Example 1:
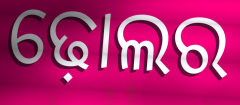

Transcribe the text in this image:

ଢ଼ୋଲର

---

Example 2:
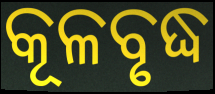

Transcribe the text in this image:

କୂଳବୃଦ୍ଧ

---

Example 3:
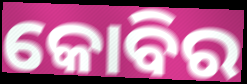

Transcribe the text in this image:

କୋବିର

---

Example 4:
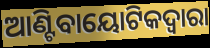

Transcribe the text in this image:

ଆଣ୍ଟିବାୟୋଟିକଦ୍ୱାରା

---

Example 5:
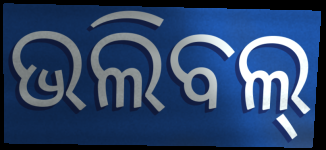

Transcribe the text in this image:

ଭଲିବଲ୍